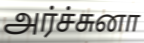
அர்ச்சுனா